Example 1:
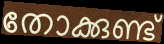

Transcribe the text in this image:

തോക്കുണ്ട്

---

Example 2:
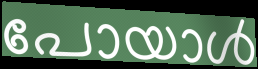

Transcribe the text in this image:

പോയാൾ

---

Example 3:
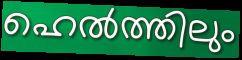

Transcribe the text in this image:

ഹെൽത്തിലും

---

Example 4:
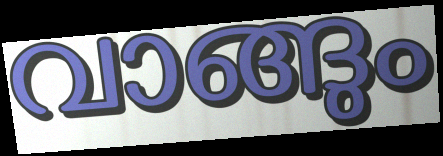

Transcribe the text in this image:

വാങ്ങും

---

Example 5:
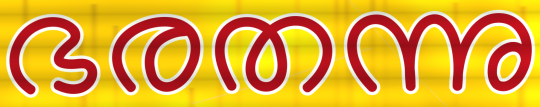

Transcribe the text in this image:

ഭരതന്നു